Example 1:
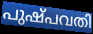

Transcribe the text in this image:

പുഷ്പവതി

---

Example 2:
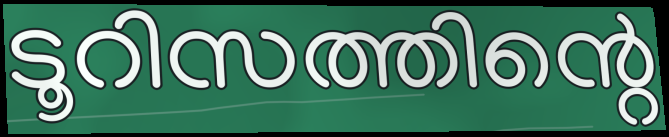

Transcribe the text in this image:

ടൂറിസത്തിന്റെ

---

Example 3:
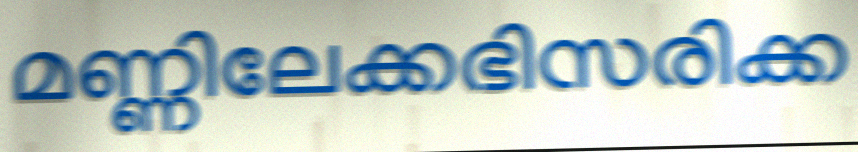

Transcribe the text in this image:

മണ്ണിലേക്കഭിസരിക്ക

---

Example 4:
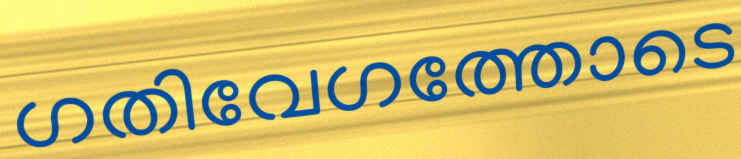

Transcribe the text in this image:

ഗതിവേഗത്തോടെ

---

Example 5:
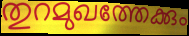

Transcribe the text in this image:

തുറമുഖത്തേക്കും